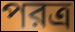
পরত্র